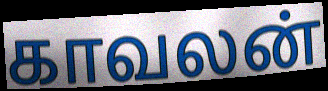
காவலன்